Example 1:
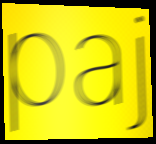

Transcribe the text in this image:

paj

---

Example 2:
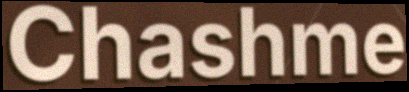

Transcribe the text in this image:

Chashme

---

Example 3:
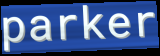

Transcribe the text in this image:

parker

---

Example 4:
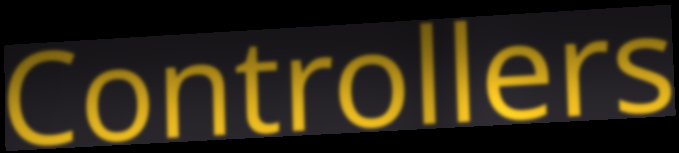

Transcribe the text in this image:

Controllers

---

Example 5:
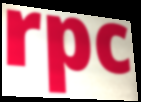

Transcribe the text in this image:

rpc